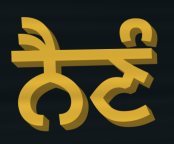
ਨੈਣੰ